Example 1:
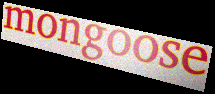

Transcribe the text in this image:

mongoose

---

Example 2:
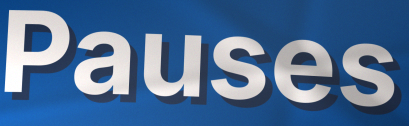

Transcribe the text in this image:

Pauses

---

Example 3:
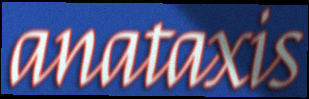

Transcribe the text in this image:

anataxis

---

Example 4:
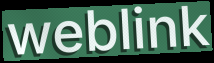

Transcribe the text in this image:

weblink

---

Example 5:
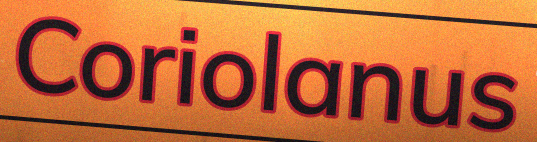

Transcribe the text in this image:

Coriolanus